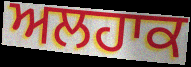
ਅਲਹਾਕ